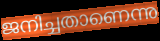
ജനിച്ചതാണെന്നു